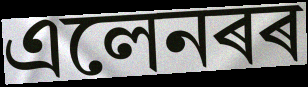
এলেনৰৰ